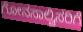
ಗೋನಸಾಲ್ವಿಸರಿಗೆ